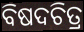
ବିଷଦଚିତ୍ର